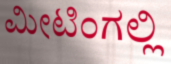
ಮೀಟಿಂಗಲ್ಲಿ